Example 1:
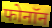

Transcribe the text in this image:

फोनॉन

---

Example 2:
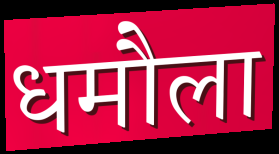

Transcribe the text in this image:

धमौला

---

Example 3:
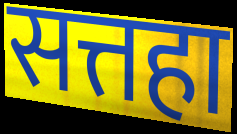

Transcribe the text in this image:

सत्तहा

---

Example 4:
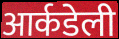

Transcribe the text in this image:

आर्कडेली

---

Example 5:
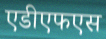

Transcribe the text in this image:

एडीएफएस